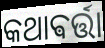
କଥାଵର୍ତ୍ତା